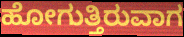
ಹೋಗುತ್ತಿರುವಾಗ